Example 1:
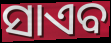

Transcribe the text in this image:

ସାଏବ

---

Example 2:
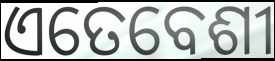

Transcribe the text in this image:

ଏତେବେଶୀ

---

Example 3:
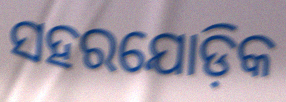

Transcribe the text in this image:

ସହରଯୋଡ଼ିକ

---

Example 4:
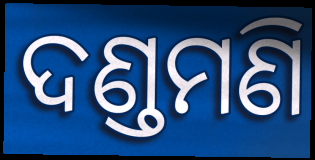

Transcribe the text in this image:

ଦଣ୍ଡମଣି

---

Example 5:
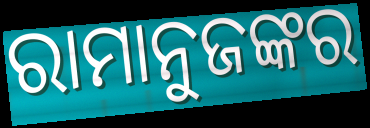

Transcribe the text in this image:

ରାମାନୁଜଙ୍କର